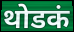
थोडकं